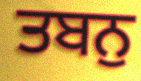
ਤਬਨੁ